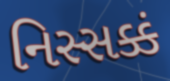
નિસ્સક્કં